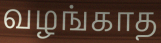
வழங்காத